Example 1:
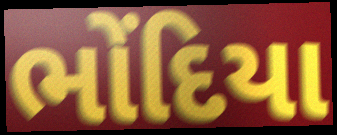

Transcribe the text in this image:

ભોંદિયા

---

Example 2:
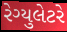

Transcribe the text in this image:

રેગ્યુલેટરે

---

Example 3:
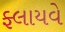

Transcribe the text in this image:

ફ્લાયવે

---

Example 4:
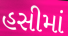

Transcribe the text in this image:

હસીમાં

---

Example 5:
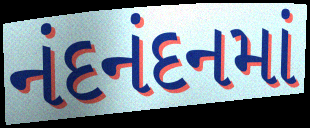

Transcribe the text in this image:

નંદનંદનમાં